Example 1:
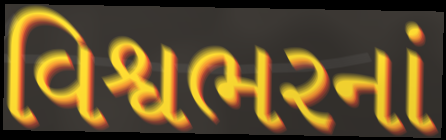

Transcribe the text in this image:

વિશ્વભરનાં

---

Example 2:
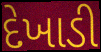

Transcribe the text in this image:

દેખાડી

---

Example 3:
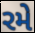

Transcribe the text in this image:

રમે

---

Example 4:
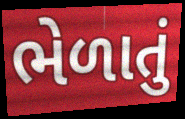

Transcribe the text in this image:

ભેળાતું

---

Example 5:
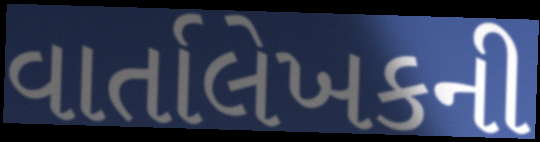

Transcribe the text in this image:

વાર્તાલેખકની